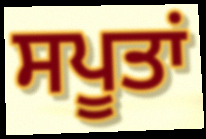
ਸਪੂਤਾਂ